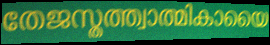
തേജസ്തത്ത്വാത്മികായൈ